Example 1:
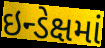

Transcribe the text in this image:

ઇન્ડેક્ષમાં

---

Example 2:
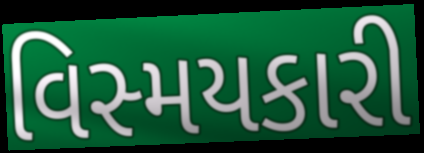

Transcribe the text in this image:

વિસ્મયકારી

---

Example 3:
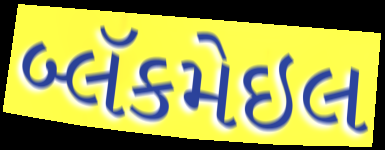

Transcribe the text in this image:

બ્લૅકમેઇલ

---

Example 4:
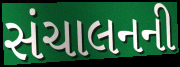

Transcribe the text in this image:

સંચાલનની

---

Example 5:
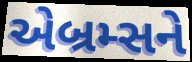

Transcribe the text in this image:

એબ્રમ્સને